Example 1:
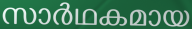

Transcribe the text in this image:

സാർഥകമായ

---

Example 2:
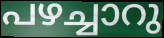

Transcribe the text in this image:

പഴച്ചാറു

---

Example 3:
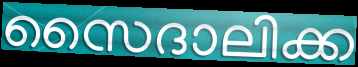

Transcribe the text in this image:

സൈദാലിക്ക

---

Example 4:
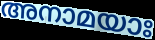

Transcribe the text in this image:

അനാമയാഃ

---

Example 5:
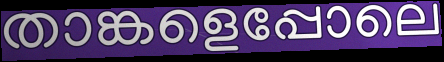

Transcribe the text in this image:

താങ്കളെപ്പോലെ